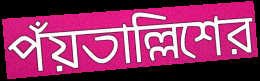
পঁয়তাল্লিশের